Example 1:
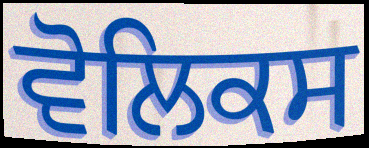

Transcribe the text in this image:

ਵੋਲਿਕਸ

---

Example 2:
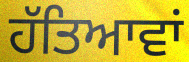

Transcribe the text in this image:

ਹੱਤਿਆਵਾਂ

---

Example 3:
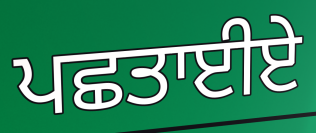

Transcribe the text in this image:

ਪਛਤਾਈਏ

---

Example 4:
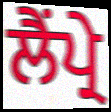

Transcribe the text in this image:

ਲੈਂਪ੍ਰੇ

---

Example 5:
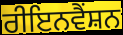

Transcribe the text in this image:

ਰੀਇਨਵੈਂਸ਼ਨ